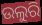
ଉଲୁରି